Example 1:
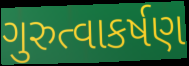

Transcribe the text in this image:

ગુરુત્વાકર્ષણ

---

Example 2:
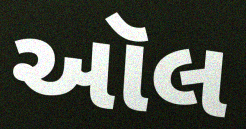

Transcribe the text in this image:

ઑલ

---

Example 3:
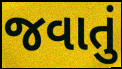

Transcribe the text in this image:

જવાતું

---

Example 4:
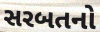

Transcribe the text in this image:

સરબતનો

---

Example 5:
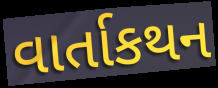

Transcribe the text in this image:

વાર્તાકથન